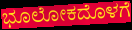
ಭೂಲೋಕದೊಳಗೆ